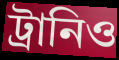
ট্রানিও